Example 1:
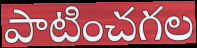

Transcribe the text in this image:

పాటించగల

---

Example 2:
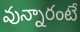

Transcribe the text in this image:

వున్నారంటే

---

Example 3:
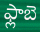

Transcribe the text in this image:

ఫ్లాబె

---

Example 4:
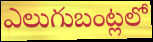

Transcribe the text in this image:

ఎలుగుబంట్లలో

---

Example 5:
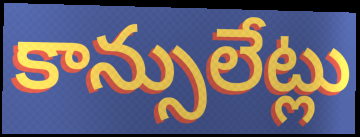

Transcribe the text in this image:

కాన్సులేట్లు